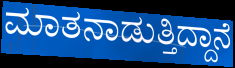
ಮಾತನಾಡುತ್ತಿದ್ದಾನೆ